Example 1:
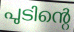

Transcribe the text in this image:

പുടിന്റെ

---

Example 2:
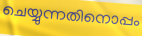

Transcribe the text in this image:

ചെയ്യുന്നതിനൊപ്പം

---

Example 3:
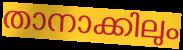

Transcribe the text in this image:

താനാക്കിലും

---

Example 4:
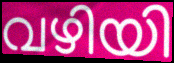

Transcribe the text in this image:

വഴിയി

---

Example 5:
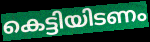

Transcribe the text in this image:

കെട്ടിയിടണം